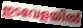
ഇടവേളയിൽ